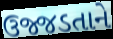
ઉજ્જડતાને